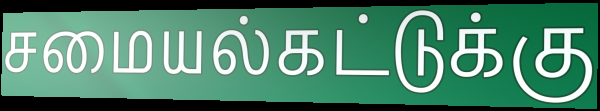
சமையல்கட்டுக்கு